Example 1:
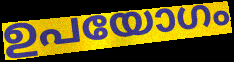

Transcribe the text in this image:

ഉപയോഗം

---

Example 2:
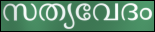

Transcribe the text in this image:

സത്യവേദം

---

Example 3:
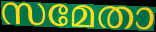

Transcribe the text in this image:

സമേതാ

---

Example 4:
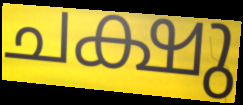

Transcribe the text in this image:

ചക്ഷു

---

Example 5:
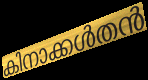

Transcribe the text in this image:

കിനാക്കൾതൻ